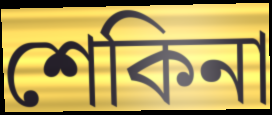
শেকিনা